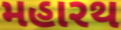
મહારથ